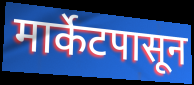
मार्केटपासून